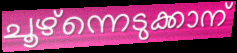
ചൂഴ്ന്നെടുക്കാന്